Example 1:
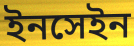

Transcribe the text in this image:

ইনসেইন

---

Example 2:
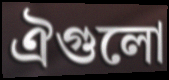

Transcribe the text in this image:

ঐগুলো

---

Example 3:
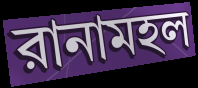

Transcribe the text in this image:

রানামহল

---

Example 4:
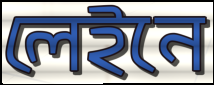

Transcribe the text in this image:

লেইনে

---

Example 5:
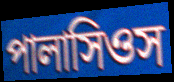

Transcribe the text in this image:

পালাসিওস